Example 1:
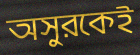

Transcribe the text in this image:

অসুরকেই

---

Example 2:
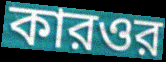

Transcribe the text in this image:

কারওর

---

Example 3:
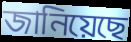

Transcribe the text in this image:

জানিয়েছে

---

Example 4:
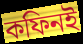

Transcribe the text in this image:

কফিনই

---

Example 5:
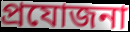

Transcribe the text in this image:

প্রযোজনা